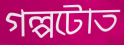
গল্পটোত